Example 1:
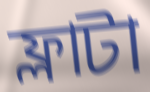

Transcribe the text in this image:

ফ্লাটা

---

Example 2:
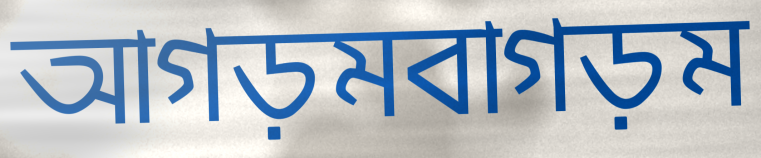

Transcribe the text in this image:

আগড়মবাগড়ম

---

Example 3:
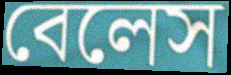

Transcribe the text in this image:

বেলেস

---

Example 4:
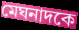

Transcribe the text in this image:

মেঘনাদকে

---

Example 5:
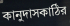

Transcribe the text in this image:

কানুদাসকাঠির